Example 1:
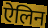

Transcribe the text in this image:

ऐलिन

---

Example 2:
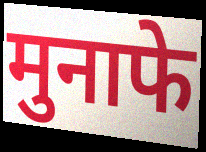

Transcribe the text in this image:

मुनाफे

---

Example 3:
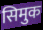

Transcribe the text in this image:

सिमुक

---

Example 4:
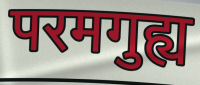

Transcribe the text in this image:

परमगुह्य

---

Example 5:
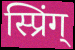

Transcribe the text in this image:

स्प्रिंग्